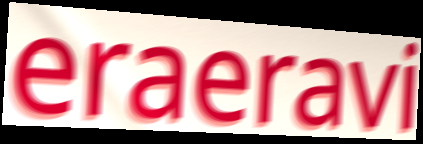
eraeravi